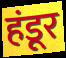
हंडूर